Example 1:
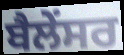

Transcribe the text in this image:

ਬੈਲੇਂਸਰ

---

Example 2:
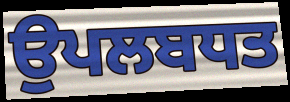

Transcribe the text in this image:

ਉਪਲਬਧਤ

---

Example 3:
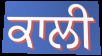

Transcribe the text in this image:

ਕਾਲੀ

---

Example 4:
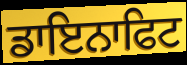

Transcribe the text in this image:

ਡਾਇਨਾਫਿਟ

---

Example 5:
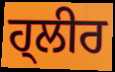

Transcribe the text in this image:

ਹ੍ਲੀਰ